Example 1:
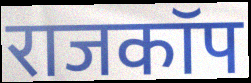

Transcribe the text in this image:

राजकॉप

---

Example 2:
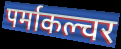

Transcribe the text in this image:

पर्माकल्चर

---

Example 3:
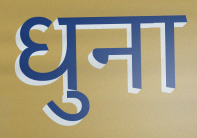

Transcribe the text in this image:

धुना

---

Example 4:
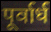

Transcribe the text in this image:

पूर्वार्ध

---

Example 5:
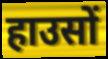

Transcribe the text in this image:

हाउसों